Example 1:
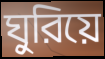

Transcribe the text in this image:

ঘুরিয়ে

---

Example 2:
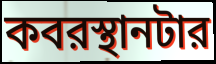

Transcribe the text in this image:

কবরস্থানটার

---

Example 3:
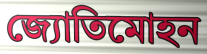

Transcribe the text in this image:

জ্যোতিমোহন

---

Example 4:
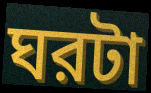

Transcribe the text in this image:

ঘরটা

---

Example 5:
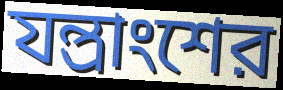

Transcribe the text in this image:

যন্ত্রাংশের